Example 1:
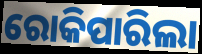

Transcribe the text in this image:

ରୋକିପାରିଲା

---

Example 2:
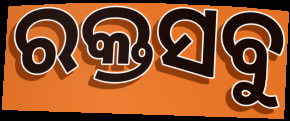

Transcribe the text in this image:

ରକ୍ତସବୁ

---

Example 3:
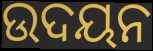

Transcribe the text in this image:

ଉଦୟନ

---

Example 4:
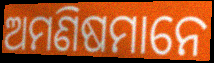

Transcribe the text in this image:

ଅମଣିଷମାନେ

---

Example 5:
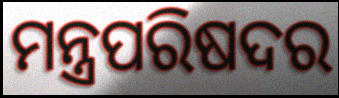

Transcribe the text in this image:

ମନ୍ତ୍ରପରିଷଦର